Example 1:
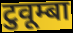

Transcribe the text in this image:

टुवूम्बा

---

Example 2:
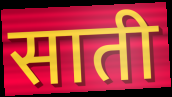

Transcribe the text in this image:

साती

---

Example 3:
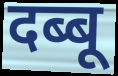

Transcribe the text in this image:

दब्बू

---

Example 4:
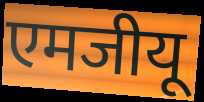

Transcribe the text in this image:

एमजीयू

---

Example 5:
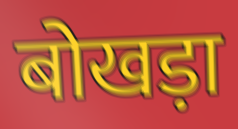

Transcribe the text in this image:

बोखड़ा